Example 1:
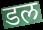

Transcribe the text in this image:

डल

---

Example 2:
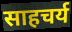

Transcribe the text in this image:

साहचर्य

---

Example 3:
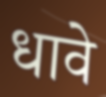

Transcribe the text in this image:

धावे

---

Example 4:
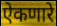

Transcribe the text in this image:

ऐकणारे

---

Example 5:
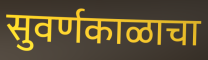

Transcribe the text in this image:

सुवर्णकाळाचा